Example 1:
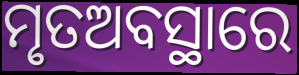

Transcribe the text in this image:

ମୃତଅବସ୍ଥାରେ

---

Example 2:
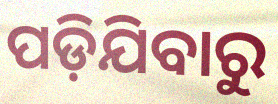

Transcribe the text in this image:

ପଡ଼ିଯିବାରୁ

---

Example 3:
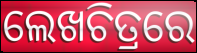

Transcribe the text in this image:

ଲେଖଚିତ୍ରରେ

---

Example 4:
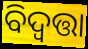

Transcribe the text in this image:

ବିଦ୍ୱତ୍ତା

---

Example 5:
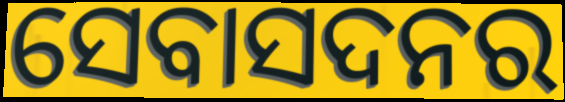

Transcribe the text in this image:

ସେବାସଦନର